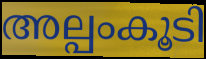
അല്പംകൂടി